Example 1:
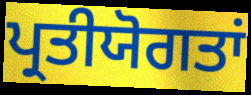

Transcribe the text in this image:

ਪ੍ਰਤੀਯੋਗਤਾਂ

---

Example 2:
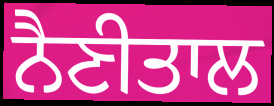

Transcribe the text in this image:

ਨੈਣੀਤਾਲ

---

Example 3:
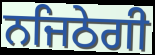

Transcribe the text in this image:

ਨਜਿਠੇਗੀ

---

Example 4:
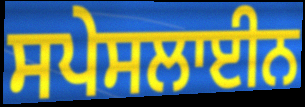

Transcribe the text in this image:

ਸਪੇਸਲਾਈਨ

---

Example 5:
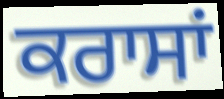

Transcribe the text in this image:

ਕਰਾਸਾਂ